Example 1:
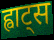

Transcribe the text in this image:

ह्वाट्स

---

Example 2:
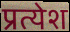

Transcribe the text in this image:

प्रत्येश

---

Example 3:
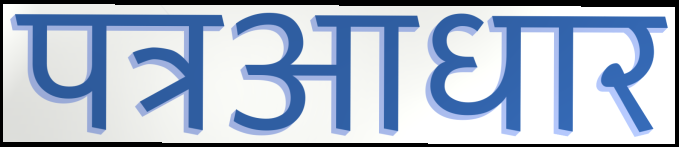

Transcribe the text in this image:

पत्रआधार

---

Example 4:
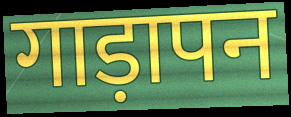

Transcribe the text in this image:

गाड़ापन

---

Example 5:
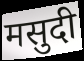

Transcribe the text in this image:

मसुदी